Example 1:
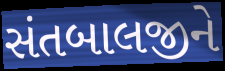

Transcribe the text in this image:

સંતબાલજીને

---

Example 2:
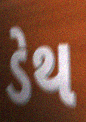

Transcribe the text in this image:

ડેથ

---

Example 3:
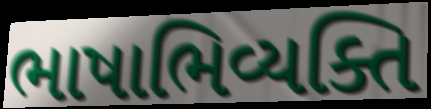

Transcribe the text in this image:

ભાષાભિવ્યક્તિ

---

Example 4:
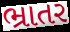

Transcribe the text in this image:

ભ્રાતર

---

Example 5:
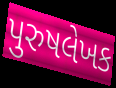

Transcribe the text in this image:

પુરુષલેખક